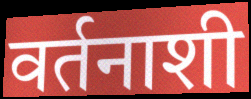
वर्तनाशी